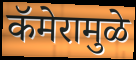
कॅमेरामुळे